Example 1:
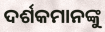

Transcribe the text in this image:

ଦର୍ଶକମାନଙ୍କୁ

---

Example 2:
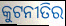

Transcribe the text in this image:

କୁଟନୀତିର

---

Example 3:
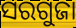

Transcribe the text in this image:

ସରଗୁଜା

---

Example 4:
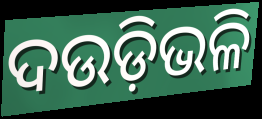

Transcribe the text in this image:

ଦଉଡ଼ିଭଳି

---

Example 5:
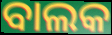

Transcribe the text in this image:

ବାଲକ